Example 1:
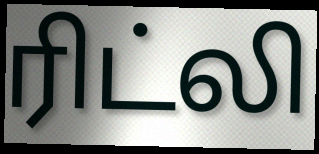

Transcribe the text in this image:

ரிட்லி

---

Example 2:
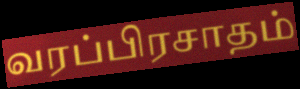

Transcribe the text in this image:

வரப்பிரசாதம்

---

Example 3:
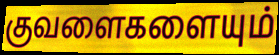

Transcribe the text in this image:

குவளைகளையும்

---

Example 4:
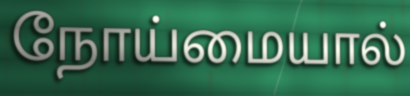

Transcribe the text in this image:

நோய்மையால்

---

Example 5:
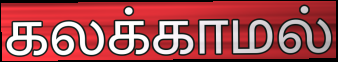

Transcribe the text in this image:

கலக்காமல்